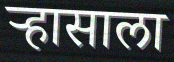
ऱ्हासाला